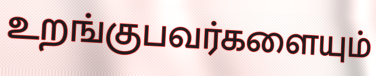
உறங்குபவர்களையும்